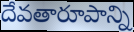
దేవతారూపాన్ని